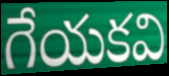
గేయకవి